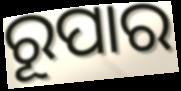
ରୂପାର